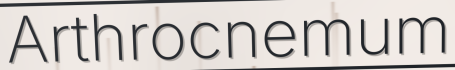
Arthrocnemum